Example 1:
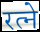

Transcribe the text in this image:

रत्ने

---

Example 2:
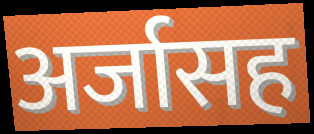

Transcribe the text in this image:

अर्जासह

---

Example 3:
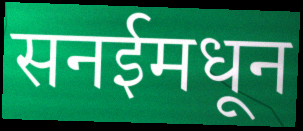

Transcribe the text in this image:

सनईमधून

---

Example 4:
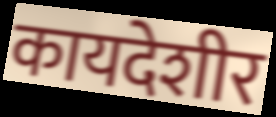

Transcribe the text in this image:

कायदेशीर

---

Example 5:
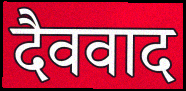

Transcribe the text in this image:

दैववाद